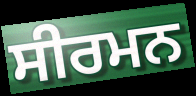
ਸੀਰਮਨ